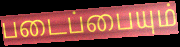
படைப்பையும்